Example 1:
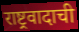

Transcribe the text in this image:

राष्ट्रवादाची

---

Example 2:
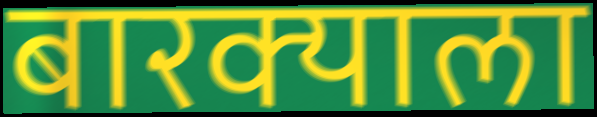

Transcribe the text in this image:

बारक्याला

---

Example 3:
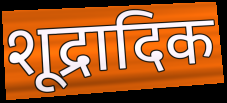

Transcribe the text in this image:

शूद्रादिक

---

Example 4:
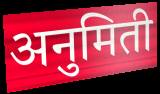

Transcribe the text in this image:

अनुमिती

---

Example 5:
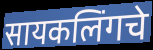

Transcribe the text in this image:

सायकलिंगचे